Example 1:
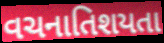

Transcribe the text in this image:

વચનાતિશયતા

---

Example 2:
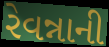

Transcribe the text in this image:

રેવન્નાની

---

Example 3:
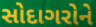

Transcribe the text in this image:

સોદાગરોને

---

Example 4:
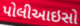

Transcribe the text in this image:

પોલીઆઇસો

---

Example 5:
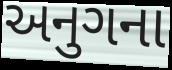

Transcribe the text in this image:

અનુગના